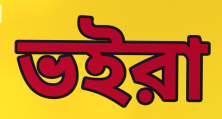
ভইরা